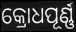
କ୍ରୋଧପୂର୍ଣ୍ଣ